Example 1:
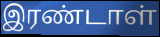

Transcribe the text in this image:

இரண்டாள்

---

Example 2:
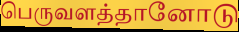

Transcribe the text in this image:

பெருவளத்தானோடு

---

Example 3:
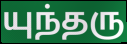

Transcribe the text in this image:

யுந்தரு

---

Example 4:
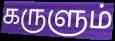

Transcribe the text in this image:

கருளும்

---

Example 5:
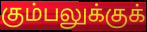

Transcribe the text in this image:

கும்பலுக்குக்